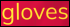
gloves